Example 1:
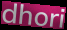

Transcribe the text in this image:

dhori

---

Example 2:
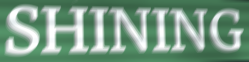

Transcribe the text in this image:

SHINING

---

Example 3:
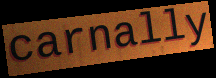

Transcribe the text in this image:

carnally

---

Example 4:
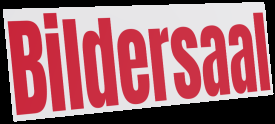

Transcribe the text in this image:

Bildersaal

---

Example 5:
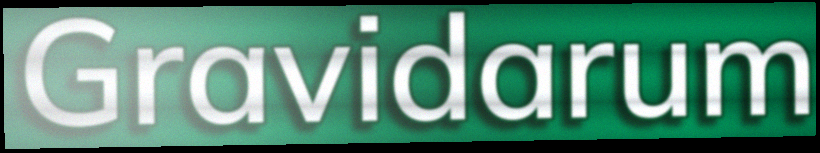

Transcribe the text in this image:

Gravidarum